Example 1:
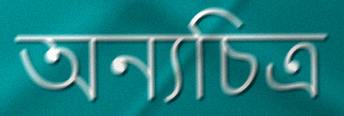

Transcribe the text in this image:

অন্যচিত্র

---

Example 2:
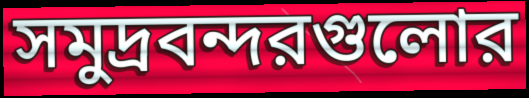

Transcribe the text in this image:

সমুদ্রবন্দরগুলোর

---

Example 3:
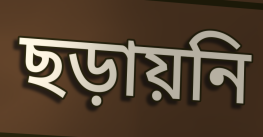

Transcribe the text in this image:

ছড়ায়নি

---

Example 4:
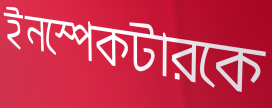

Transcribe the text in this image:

ইনস্পেকটারকে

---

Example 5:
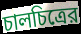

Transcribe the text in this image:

চালচিত্রের